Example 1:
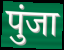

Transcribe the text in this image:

पुंजा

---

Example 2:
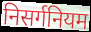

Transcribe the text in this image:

निसर्गनियम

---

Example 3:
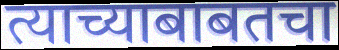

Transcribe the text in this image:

त्याच्याबाबतचा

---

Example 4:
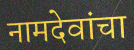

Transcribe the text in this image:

नामदेवांचा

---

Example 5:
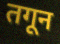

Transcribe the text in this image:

तगून